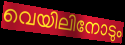
വെയിലിനോടും